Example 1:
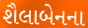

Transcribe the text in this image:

શૈલાબેનના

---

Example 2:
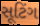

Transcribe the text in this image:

સૂટિંગ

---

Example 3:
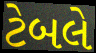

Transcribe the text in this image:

ટેબલે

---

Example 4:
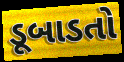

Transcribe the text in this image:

ડૂબાડતો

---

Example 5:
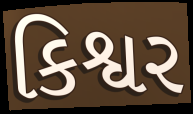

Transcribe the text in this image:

કિશ્વર